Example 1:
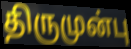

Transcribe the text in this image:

திருமுன்பு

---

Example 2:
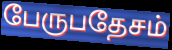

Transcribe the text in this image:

பேருபதேசம்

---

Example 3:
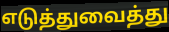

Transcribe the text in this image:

எடுத்துவைத்து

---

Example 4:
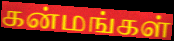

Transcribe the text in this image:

கன்மங்கள்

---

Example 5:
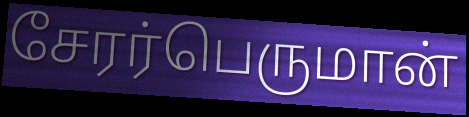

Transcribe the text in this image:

சேரர்பெருமான்